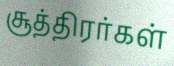
சூத்திரர்கள்